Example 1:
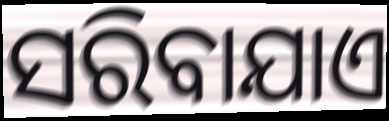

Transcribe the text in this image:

ସରିବାଯାଏ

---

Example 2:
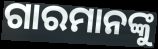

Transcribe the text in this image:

ଗାରମାନଙ୍କୁ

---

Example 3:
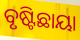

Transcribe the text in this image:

ବୃଷ୍ଟିଛାୟା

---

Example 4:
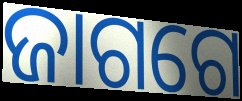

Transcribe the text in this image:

ଜାଗଗେ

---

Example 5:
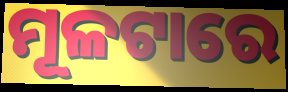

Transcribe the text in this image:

ମୂଳଟାରେ